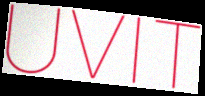
UVIT